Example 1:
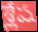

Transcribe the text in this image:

శ్లేష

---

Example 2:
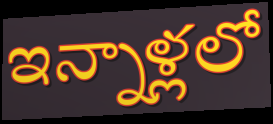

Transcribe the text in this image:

ఇన్నాళ్లలో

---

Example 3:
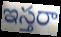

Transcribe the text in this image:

ఇస్తరా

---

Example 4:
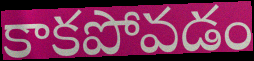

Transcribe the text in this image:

కాకపోవడం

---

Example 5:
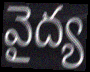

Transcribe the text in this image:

వైద్య